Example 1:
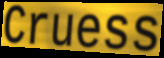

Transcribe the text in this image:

Cruess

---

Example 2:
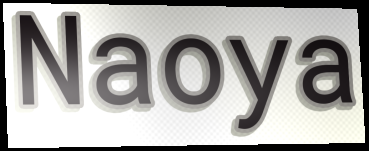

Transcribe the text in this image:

Naoya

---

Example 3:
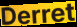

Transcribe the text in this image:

Derret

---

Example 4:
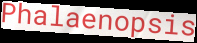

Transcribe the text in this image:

Phalaenopsis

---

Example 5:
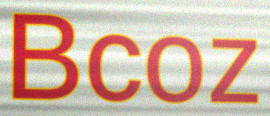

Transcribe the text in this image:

Bcoz